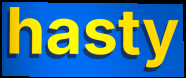
hasty